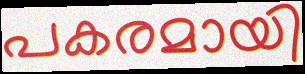
പകരമായി